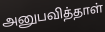
அனுபவித்தாள்